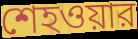
শেহওয়ার